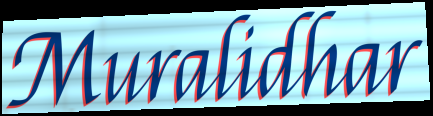
Muralidhar